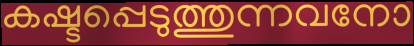
കഷ്ടപ്പെടുത്തുന്നവനോ